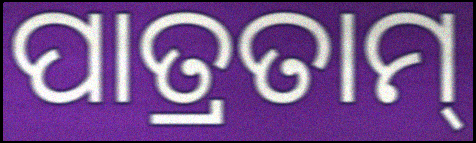
ପାତ୍ରତାମ୍